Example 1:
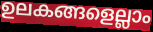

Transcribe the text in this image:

ഉലകങ്ങളെല്ലാം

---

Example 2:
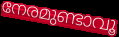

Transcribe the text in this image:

നേരമുണ്ടാവൂ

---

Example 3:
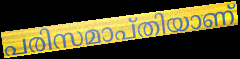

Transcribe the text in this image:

പരിസമാപ്തിയാണ്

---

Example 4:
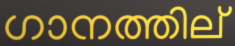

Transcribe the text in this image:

ഗാനത്തില്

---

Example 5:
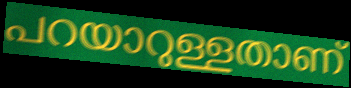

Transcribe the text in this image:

പറയാറുള്ളതാണ്